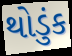
થોડુંક